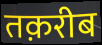
तक़रीब